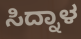
ಸಿದ್ನಾಳ